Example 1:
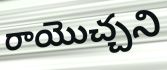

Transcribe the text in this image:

రాయొచ్చని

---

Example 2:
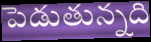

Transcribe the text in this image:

పెడుతున్నది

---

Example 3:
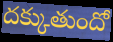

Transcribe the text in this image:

దక్కుతుందో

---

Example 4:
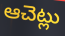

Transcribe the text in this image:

ఆచెట్లు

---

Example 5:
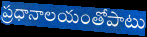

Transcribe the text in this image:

ప్రధానాలయంతోపాటు